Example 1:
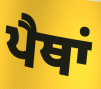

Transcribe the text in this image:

ਪੈਥਾਂ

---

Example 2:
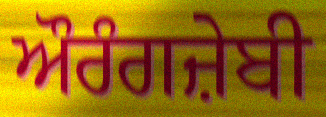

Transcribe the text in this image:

ਔਰੰਗਜ਼ੇਬੀ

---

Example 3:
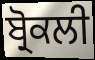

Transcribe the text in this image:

ਬ੍ਰੋਕਲੀ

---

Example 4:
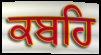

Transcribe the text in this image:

ਕਬਹਿ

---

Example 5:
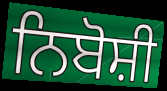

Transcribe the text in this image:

ਨਿਬੋਸ਼ੀ